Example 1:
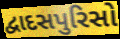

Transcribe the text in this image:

દ્વાદસપુરિસો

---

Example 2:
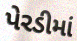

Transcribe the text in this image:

પેરડીમાં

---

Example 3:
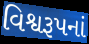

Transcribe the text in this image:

વિશ્વરૂપનાં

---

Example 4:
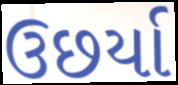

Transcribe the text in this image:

ઉછર્યા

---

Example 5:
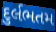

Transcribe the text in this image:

દુર્લભતમ